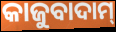
କାଜୁବାଦାମ୍